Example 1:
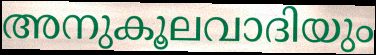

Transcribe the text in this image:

അനുകൂലവാദിയും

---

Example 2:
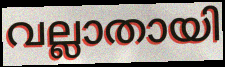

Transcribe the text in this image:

വല്ലാതായി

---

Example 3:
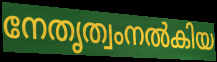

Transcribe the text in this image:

നേതൃത്വംനൽകിയ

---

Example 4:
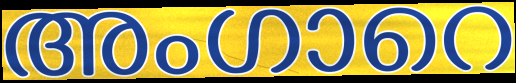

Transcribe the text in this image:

അംഗാറെ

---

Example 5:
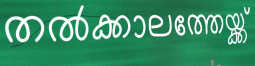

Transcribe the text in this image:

തൽക്കാലത്തേയ്ക്ക്